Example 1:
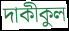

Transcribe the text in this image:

দাকীকুল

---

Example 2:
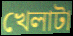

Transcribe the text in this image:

খেলাটা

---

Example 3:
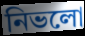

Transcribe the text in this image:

নিভলো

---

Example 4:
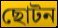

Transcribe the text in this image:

ছোটন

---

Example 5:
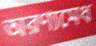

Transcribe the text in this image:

অরণ্যমেধ